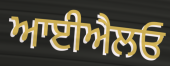
ਆਈਐਲਓ